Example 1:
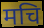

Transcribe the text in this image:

मचि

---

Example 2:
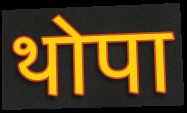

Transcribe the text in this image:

थोपा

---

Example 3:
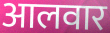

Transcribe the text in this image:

आलवार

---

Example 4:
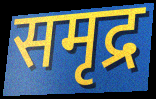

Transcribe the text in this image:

समृद्र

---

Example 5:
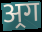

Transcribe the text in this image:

अ्रग